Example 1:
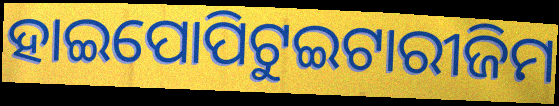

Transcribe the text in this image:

ହାଇପୋପିଟୁଇଟାରୀଜିମ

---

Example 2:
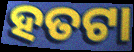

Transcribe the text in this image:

ହତଟା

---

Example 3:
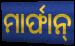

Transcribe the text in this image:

ମାର୍ଫାନ୍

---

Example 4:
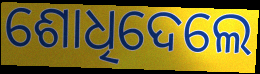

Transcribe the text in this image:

ଶୋଧିଦେଲେ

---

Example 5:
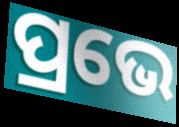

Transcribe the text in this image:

ପ୍ରଭେ